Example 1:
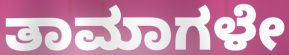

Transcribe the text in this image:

ತಾಮಾಗಳೇ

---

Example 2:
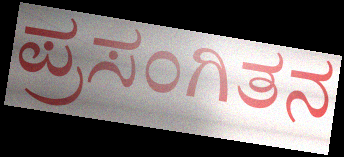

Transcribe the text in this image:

ಪ್ರಸಂಗಿತನ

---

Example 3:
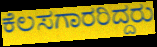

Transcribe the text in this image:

ಕೆಲಸಗಾರರಿದ್ದರು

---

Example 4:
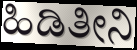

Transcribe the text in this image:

ಹಿಡಿತೀನಿ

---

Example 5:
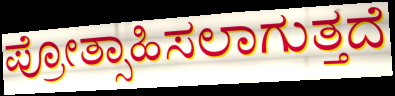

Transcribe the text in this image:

ಪ್ರೋತ್ಸಾಹಿಸಲಾಗುತ್ತದೆ